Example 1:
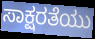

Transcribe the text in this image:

ಸಾಕ್ಷರತೆಯು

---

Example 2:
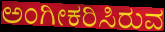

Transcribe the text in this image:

ಅಂಗೀಕರಿಸಿರುವ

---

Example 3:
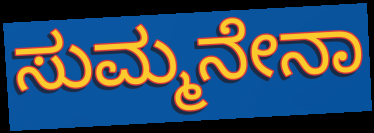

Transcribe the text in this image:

ಸುಮ್ಮನೇನಾ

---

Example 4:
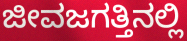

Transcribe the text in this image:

ಜೀವಜಗತ್ತಿನಲ್ಲಿ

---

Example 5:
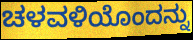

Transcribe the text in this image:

ಚಳವಳಿಯೊಂದನ್ನು